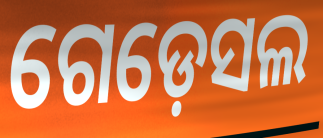
ଗେଡ଼େସଲ